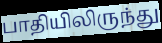
பாதியிலிருந்து